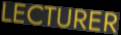
LECTURER